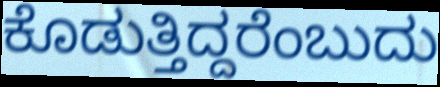
ಕೊಡುತ್ತಿದ್ದರೆಂಬುದು